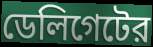
ডেলিগেটের